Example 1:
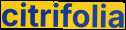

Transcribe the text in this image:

citrifolia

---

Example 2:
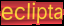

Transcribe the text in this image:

eclipta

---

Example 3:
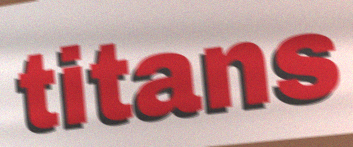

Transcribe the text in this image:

titans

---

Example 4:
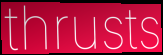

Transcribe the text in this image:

thrusts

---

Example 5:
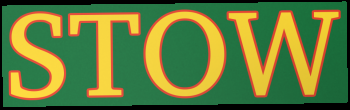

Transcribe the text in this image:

STOW